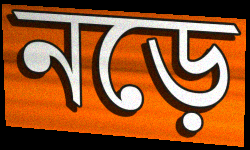
নড়ে